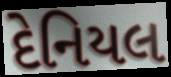
દેનિયલ